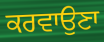
ਕਰਵਾਉਣਾ